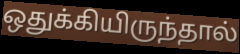
ஒதுக்கியிருந்தால்